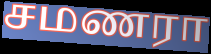
சமணரா